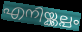
എനിയ്ക്കല്പം